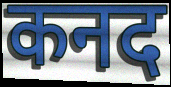
कनद